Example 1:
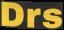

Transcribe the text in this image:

Drs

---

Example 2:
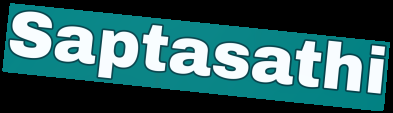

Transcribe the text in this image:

Saptasathi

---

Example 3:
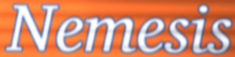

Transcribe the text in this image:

Nemesis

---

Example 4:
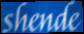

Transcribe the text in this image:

shende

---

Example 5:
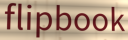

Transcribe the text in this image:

flipbook